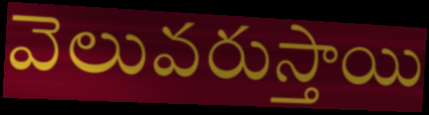
వెలువరుస్తాయి